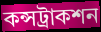
কন্সট্রাকশন